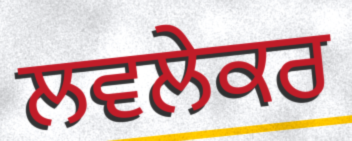
ਲਵਲੇਕਰ